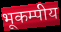
भूकम्पीय